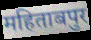
महिताबपुर